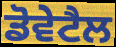
ਡੋਵੇਟੈਲ